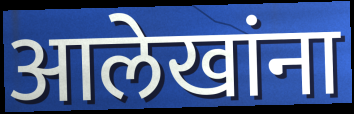
आलेखांना